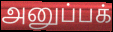
அனுப்பக்